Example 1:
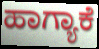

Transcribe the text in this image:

ಹಾಗ್ಯಾಕೆ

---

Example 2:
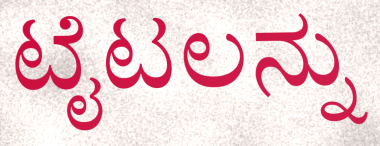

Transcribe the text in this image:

ಟೈಟಲನ್ನು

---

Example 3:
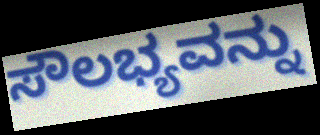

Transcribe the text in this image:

ಸೌಲಭ್ಯವನ್ನು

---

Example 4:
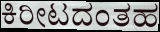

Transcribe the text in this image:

ಕಿರೀಟದಂತಹ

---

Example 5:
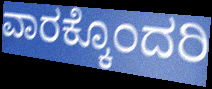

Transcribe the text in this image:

ವಾರಕ್ಕೊಂದರಿ